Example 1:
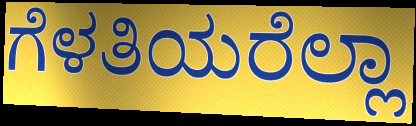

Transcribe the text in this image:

ಗೆಳತಿಯರೆಲ್ಲಾ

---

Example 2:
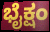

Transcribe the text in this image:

ಭೈಕ್ಷಂ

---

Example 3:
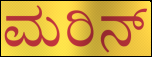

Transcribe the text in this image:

ಮರಿನ್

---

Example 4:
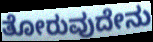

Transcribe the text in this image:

ತೋರುವುದೇನು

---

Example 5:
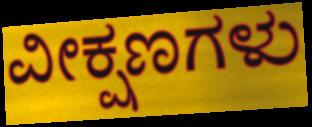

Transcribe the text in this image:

ವೀಕ್ಷಣಗಳು